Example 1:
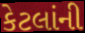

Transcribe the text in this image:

કેટલાંની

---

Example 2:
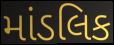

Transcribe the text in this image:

માંડલિક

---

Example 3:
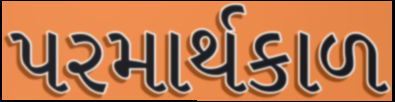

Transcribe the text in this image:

પરમાર્થકાળ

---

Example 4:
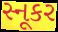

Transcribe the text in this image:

સ્નૂકર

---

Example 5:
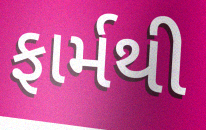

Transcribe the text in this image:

ફાર્મથી